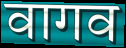
वागव